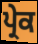
ਪ੍ਰੇਕ